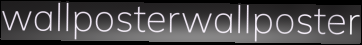
wallposterwallposter